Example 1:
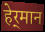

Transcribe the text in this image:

हेर्मान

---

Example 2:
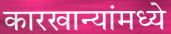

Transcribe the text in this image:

कारखान्यांमध्ये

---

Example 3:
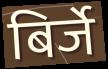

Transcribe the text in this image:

बिर्जे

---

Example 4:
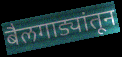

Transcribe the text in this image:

बैलगाड्यांतून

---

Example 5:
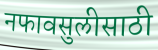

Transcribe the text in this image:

नफावसुलीसाठी